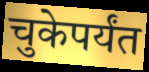
चुकेपर्यंत